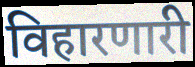
विहारणारी